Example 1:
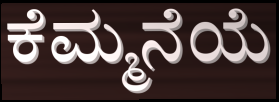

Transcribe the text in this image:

ಕೆಮ್ಮನೆಯೆ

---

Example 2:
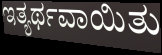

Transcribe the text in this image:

ಇತ್ಯರ್ಥವಾಯಿತು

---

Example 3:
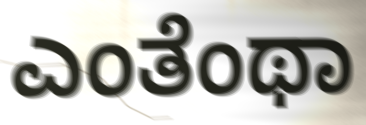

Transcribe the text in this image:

ಎಂತೆಂಥಾ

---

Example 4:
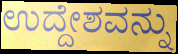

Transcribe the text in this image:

ಉದ್ದೇಶವನ್ನು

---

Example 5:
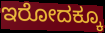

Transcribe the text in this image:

ಇರೋದಕ್ಕೂ